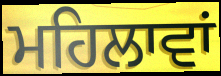
ਮਹਿਲਾਵਾਂ